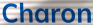
Charon